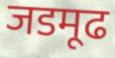
जडमूढ